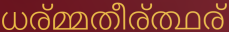
ധര്മ്മതീര്ത്ഥര്